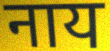
नाय